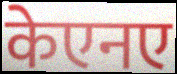
केएनए